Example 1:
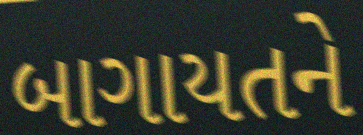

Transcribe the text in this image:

બાગાયતને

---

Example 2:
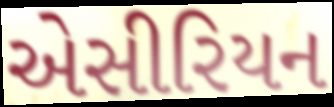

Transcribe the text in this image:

એસીરિયન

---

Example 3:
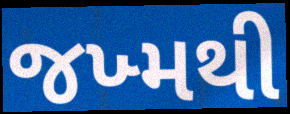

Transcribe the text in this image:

જખ્મથી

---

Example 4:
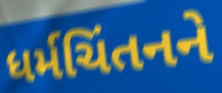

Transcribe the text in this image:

ધર્મચિંતનને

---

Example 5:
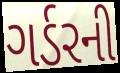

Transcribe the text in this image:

ગર્ડરની